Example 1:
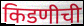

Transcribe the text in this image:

किडणीची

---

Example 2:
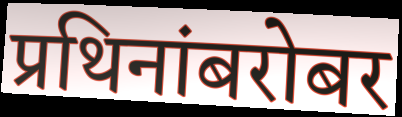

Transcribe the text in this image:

प्रथिनांबरोबर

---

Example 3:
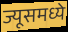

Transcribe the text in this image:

ज्यूसमध्ये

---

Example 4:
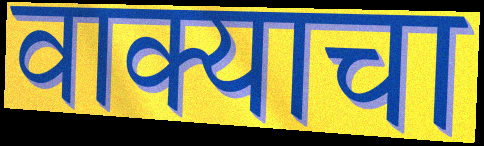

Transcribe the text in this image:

वाक्याचा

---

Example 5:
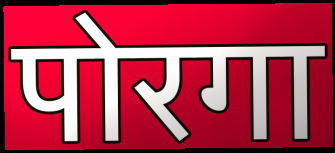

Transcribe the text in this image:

पोरगा